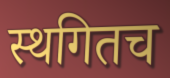
स्थगितच